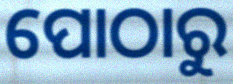
ପୋଠାରୁ